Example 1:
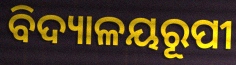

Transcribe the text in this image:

ବିଦ୍ୟାଳୟରୂପୀ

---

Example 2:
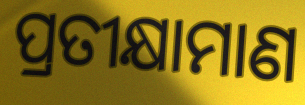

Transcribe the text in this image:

ପ୍ରତୀକ୍ଷାମାଣ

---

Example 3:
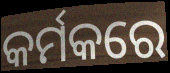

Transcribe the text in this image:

କର୍ମକରେ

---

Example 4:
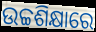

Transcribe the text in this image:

ଉଚ୍ଚଶିକ୍ଷାରେ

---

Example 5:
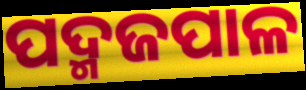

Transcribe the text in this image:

ପଦ୍ମଜପାଳ